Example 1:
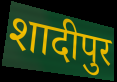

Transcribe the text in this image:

शादीपुर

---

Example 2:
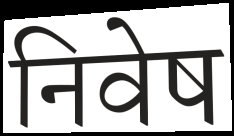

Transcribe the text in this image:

निवेष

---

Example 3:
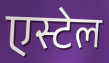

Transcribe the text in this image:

एस्टेल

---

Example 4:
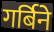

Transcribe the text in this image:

गर्बिने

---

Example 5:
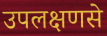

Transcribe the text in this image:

उपलक्षणसे